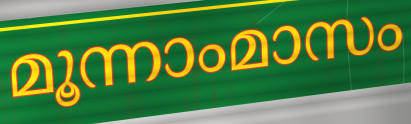
മൂന്നാംമാസം